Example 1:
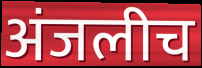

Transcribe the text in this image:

अंजलीच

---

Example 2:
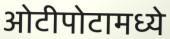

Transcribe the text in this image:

ओटीपोटामध्ये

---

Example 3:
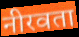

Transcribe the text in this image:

नीरवता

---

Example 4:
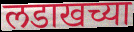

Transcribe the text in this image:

लडाखच्या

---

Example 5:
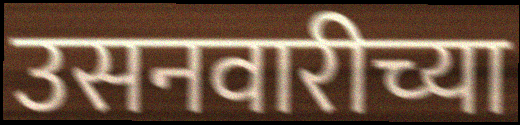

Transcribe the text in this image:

उसनवारीच्या